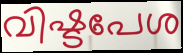
വിഷ്ടപേശ